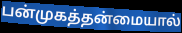
பன்முகத்தன்மையால்